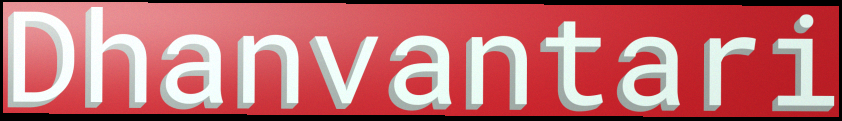
Dhanvantari